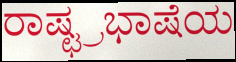
ರಾಷ್ಟ್ರಭಾಷೆಯ